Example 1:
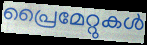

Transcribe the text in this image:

പ്രൈമേറ്റുകൾ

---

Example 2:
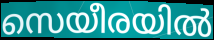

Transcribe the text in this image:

സെയീരയിൽ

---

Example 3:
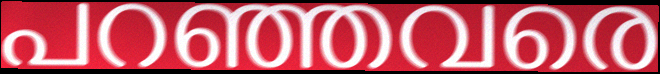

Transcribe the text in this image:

പറഞ്ഞവരെ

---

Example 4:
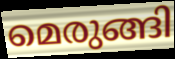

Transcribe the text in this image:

മെരുങ്ങി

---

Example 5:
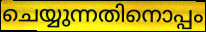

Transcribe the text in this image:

ചെയ്യുന്നതിനൊപ്പം